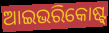
ଆଇଭରିକୋଷ୍ଟ୍